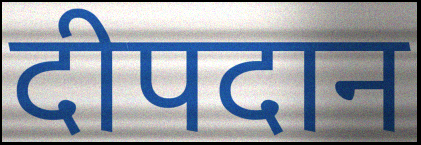
दीपदान